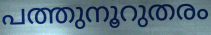
പത്തുനൂറുതരം